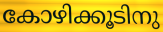
കോഴിക്കൂടിനു